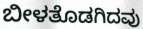
ಬೀಳತೊಡಗಿದವು